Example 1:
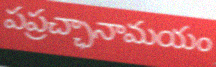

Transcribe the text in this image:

పప్రచ్ఛానామయం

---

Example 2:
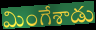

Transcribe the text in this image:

మింగేశాడు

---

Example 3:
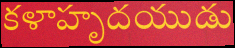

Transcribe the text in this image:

కళాహృదయుడు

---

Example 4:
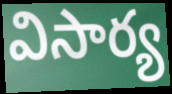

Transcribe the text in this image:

విసార్య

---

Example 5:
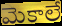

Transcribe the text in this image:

మెకాలే